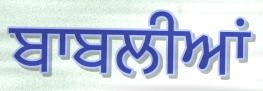
ਬਾਬਲੀਆਂ